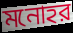
মনোহর